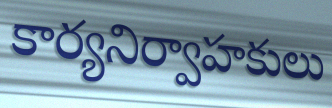
కార్యనిర్వాహకులు